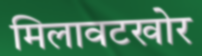
मिलावटखोर